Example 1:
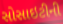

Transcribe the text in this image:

સોસાઇટીની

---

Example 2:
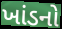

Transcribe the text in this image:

ખાંડનો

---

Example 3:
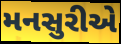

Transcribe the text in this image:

મનસુરીએ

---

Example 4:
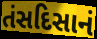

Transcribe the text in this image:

તંસદિસાનં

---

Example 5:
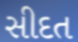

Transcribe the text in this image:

સીદત